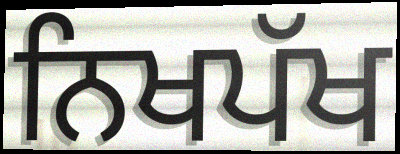
ਨਿਖਪੱਖ